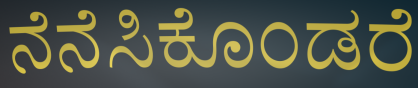
ನೆನೆಸಿಕೊಂಡರೆ